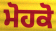
ਮੋਹਕੋ